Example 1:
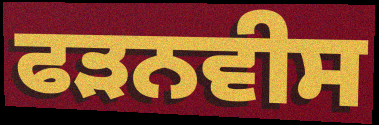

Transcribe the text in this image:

ਫੜਨਵੀਸ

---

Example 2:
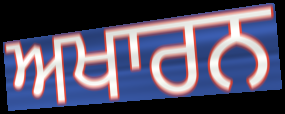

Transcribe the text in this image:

ਅਖਾਰਨ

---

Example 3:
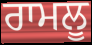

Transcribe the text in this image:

ਰਾਮਲੂ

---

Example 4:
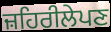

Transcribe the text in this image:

ਜ਼ਹਿਰੀਲੇਪਣ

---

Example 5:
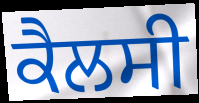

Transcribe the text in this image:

ਕੈਲਸੀ